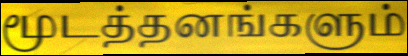
மூடத்தனங்களும்